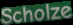
Scholze